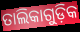
ତାଲିକାଗୁଡ଼ିକ